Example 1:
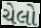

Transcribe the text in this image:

ચેલો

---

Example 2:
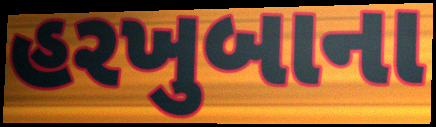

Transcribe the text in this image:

હરખુબાના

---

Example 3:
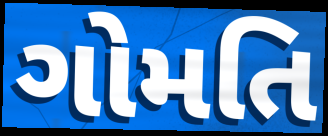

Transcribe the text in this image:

ગોમતિ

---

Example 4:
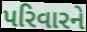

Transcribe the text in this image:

પરિવારને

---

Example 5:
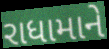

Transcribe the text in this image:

રાધામાને